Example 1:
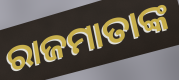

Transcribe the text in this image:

ରାଜମାତାଙ୍କ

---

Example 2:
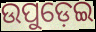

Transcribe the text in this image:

ଉପୁଡ଼େଇ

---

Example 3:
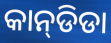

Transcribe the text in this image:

କାନ୍‌ଡିଡା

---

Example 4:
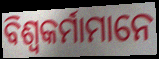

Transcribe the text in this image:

ବିଶ୍ଵକର୍ମାମାନେ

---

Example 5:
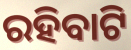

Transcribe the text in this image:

ରହିବାଟି